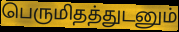
பெருமிதத்துடனும்